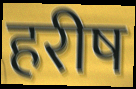
हरीष